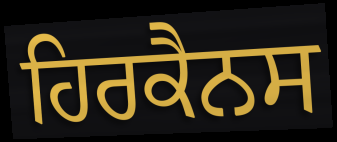
ਹਿਰਕੈਨਸ